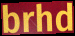
brhd